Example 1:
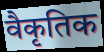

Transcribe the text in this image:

वैकृतिक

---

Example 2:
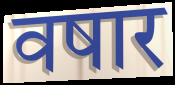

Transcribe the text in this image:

वषार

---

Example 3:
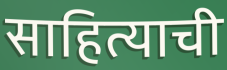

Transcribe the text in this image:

साहित्याची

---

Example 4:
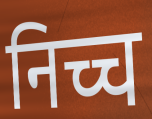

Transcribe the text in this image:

निच्च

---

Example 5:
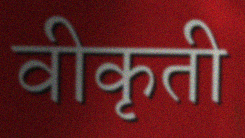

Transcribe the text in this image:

वीकृती